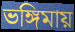
ভঙ্গিমায়